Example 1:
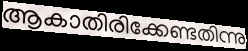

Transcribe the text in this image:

ആകാതിരിക്കേണ്ടതിന്നു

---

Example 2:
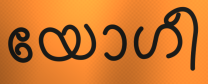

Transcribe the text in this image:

യോഗീ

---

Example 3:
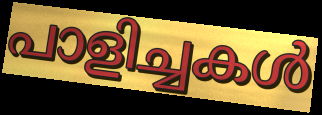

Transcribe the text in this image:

പാളിച്ചകൾ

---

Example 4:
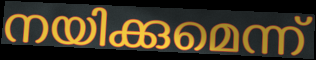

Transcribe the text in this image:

നയിക്കുമെന്ന്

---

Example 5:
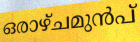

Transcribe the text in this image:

ഒരാഴ്ചമുൻപ്